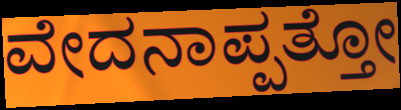
ವೇದನಾಪ್ಪತ್ತೋ